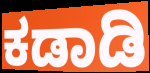
ಕಡಾಡಿ